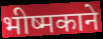
भीष्मकाने